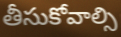
తీసుకోవాల్సి